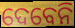
ଦେବେନି